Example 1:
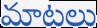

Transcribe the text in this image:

మాటలు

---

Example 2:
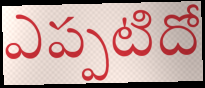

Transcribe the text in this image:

ఎప్పటిదో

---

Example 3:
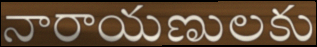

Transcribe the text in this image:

నారాయణులకు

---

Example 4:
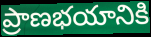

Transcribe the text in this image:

ప్రాణభయానికి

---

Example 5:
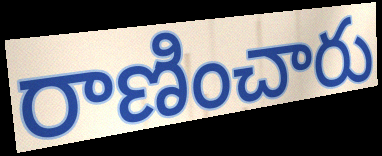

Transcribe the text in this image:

రాణించారు